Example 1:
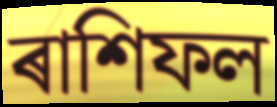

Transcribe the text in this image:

ৰাশিফল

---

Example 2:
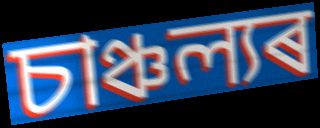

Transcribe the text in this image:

চাঞ্চল্যৰ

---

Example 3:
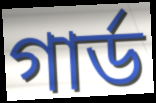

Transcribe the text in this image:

গাৰ্ড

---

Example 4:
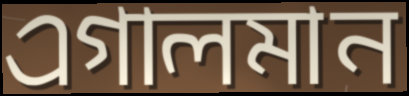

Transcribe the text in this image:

এগালমান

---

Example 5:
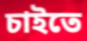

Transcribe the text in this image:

চাইতে